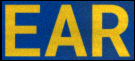
EAR